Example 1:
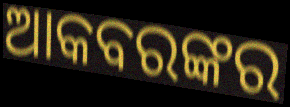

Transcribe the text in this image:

ଆକବରଙ୍କର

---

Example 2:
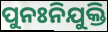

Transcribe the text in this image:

ପୁନଃନିଯୁକ୍ତି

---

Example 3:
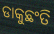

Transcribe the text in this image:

ଡାକୁଛଂତି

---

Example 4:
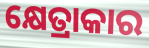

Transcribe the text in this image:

କ୍ଷେତ୍ରାକାର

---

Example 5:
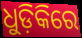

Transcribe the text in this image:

ଧୁଡ଼ିକିରେ